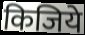
किजिये